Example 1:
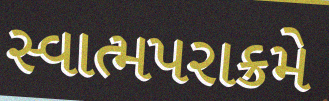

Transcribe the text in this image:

સ્વાત્મપરાક્રમે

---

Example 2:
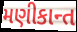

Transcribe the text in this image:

મણીકાન્ત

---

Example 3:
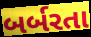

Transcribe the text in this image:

બર્બરતા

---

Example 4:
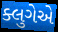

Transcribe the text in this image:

ક્લુગેએ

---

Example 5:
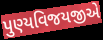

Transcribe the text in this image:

પુણ્યવિજયજીએ